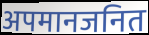
अपमानजनित